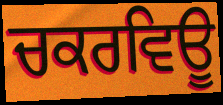
ਚਕਰਵਿਊ